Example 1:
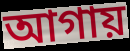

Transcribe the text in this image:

আগায়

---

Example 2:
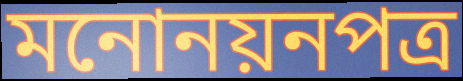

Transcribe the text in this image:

মনোনয়নপত্র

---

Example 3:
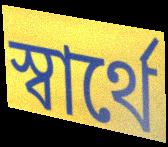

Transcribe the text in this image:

স্বার্থে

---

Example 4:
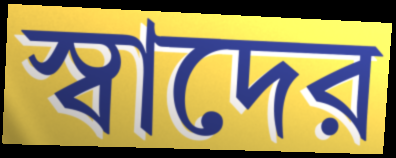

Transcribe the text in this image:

স্বাদের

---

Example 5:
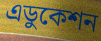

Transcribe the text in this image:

এডুকেশন